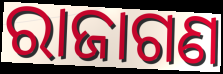
ରାଜାଗଣ